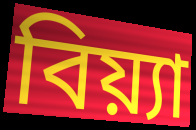
বিয়্যা